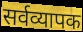
सर्वव्यापक